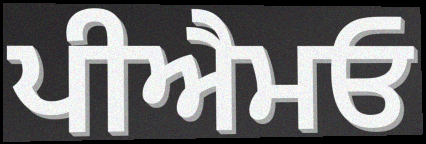
ਪੀਐਮਓ